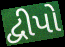
દ્વીપો